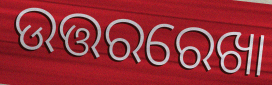
ଉତ୍ତରରେଖା